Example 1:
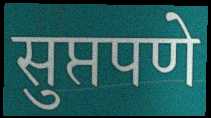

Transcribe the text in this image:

सुप्तपणे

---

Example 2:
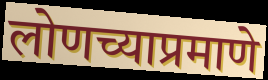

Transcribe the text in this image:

लोणच्याप्रमाणे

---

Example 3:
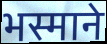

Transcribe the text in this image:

भस्माने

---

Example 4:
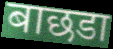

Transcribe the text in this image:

बाछडा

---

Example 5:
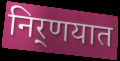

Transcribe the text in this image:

निर्णयात